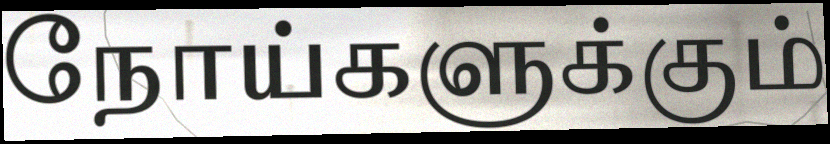
நோய்களுக்கும்